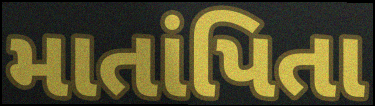
માતાંપિતા